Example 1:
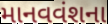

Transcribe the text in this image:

માનવવંશના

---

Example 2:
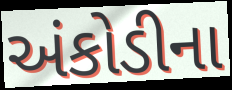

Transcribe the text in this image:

અંકોડીના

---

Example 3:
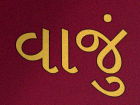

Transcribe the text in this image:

વાજું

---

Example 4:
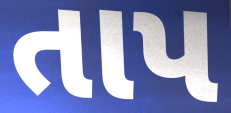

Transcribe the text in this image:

તાપ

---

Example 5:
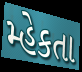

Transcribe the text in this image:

મ્હેકતા